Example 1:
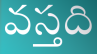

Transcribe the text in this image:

వస్తది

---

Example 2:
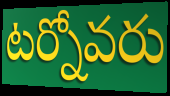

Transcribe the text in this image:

టర్నోవరు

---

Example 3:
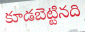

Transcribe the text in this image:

కూడబెట్టినది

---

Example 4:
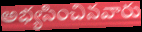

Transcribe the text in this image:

అభ్యసించినవారు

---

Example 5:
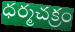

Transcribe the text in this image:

ధర్మచక్రం